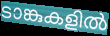
ടാങ്കുകളിൽ